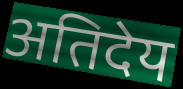
अतिदेय